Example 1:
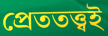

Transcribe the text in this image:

প্রেততত্ত্বই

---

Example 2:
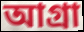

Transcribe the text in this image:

আগ্রা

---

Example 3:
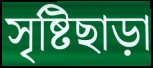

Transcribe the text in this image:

সৃষ্টিছাড়া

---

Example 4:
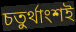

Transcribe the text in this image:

চতুর্থাংশই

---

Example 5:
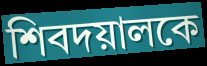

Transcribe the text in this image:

শিবদয়ালকে